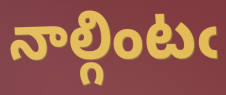
నాల్గింటఁ